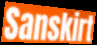
Sanskirt